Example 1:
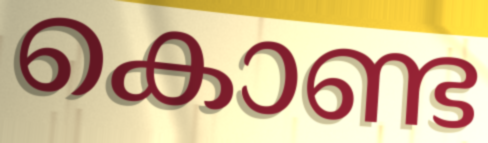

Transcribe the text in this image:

കൊണ്ട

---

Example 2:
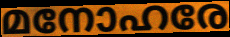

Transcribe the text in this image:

മനോഹരേ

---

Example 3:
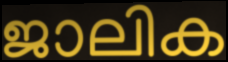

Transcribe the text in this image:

ജാലിക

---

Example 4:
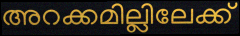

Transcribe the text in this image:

അറക്കമില്ലിലേക്ക്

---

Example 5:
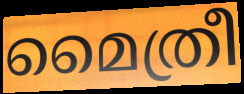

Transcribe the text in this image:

മൈത്രീ